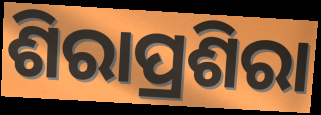
ଶିରାପ୍ରଶିରା